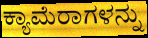
ಕ್ಯಾಮೆರಾಗಳನ್ನು